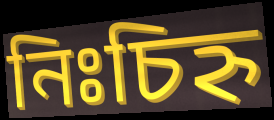
নিঃচিহ্ন